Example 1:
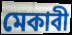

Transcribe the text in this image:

মেকাবী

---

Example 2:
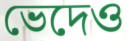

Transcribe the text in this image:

ভেদেও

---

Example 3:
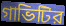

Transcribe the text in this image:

গাভিটির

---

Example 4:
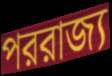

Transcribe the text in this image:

পররাজ্য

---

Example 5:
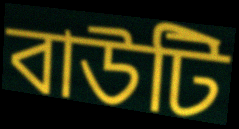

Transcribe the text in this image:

বাউটি